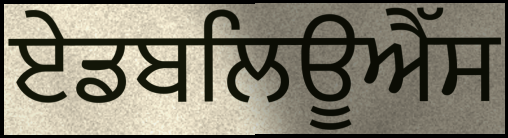
ਏਡਬਲਿਊਐੱਸ